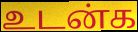
உடன்க